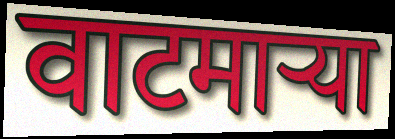
वाटमाऱ्या